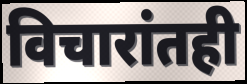
विचारांतही